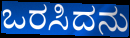
ಒರಸಿದನು